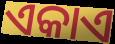
ଏକାଏ